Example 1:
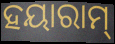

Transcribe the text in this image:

ହୟାରାମ୍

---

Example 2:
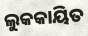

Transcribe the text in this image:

ଲୁକକାୟିତ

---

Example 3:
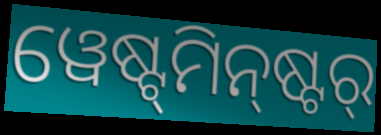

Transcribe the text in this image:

ୱେଷ୍ଟ୍‌ମିନ୍‌ଷ୍ଟର୍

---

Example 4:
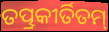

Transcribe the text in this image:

ତତ୍ପ୍ରକୀର୍ତିତମ୍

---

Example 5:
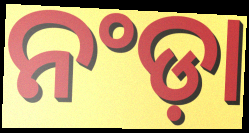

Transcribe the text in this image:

ନଂଡ଼ା